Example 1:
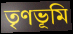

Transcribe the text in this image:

তৃণভূমি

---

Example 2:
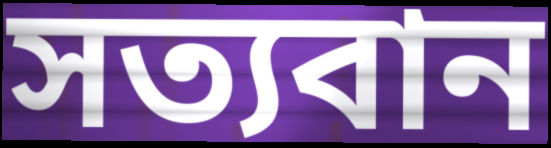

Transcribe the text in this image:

সত্যবান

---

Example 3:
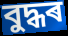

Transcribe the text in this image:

বুদ্ধৰ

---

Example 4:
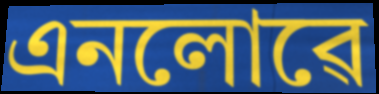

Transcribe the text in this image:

এনলোৱে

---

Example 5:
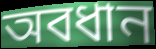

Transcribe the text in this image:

অবধান